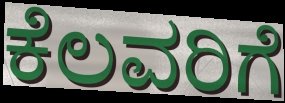
ಕೆಲವರಿಗೆ